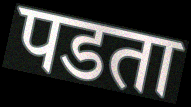
पडता